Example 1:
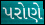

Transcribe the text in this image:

પરોણે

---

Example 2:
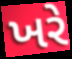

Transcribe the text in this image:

ખરે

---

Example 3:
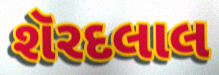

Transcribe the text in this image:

શૅરદલાલ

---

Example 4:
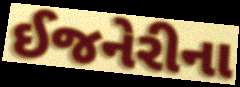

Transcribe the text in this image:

ઈજનેરીના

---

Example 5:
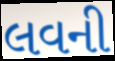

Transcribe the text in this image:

લવની